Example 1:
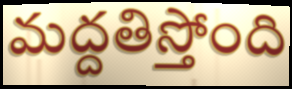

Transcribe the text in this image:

మద్దతిస్తోంది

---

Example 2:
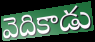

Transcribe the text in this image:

వెదికాడు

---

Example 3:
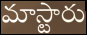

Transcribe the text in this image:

మాస్టారు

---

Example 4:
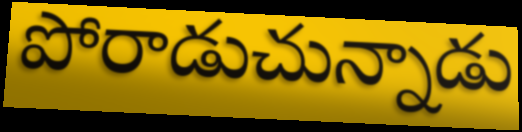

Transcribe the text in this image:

పోరాడుచున్నాడు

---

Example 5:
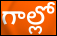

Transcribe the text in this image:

గాల్లో